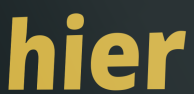
hier